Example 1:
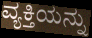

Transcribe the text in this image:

ವ್ಯಕ್ತಿಯನ್ನು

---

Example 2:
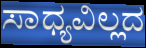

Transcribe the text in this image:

ಸಾಧ್ಯವಿಲ್ಲದ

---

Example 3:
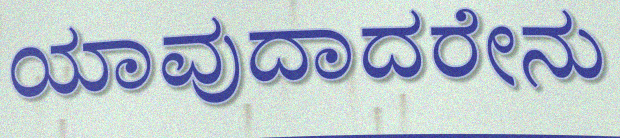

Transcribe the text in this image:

ಯಾವುದಾದರೇನು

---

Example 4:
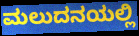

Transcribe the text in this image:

ಮಲುದನಯಲ್ಲಿ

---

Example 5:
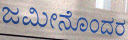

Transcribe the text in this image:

ಜಮೀನೊಂದರ